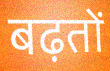
बढ़तों